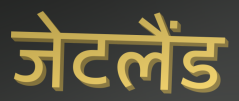
जेटलैंड